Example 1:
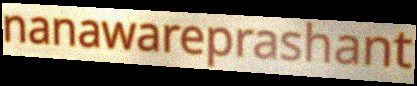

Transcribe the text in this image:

nanawareprashant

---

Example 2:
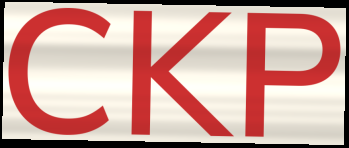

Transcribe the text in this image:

CKP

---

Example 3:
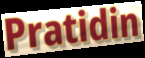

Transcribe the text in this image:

Pratidin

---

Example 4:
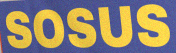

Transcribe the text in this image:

SOSUS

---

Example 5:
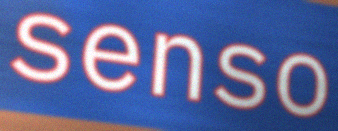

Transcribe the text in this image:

senso